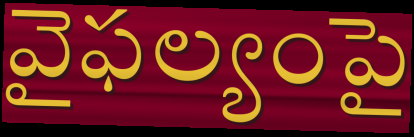
వైఫల్యంపై